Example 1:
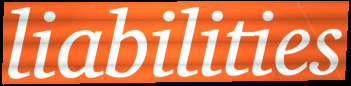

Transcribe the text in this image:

liabilities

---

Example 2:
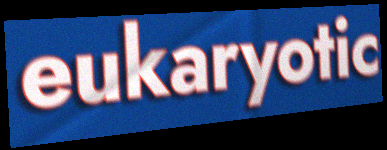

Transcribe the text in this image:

eukaryotic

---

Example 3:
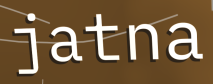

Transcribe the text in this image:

jatna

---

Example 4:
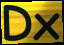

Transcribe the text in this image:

Dx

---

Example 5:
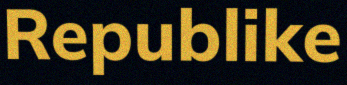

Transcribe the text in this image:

Republike